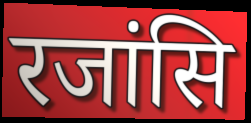
रजांसि